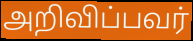
அறிவிப்பவர்